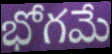
భోగమే